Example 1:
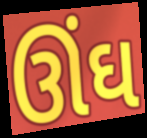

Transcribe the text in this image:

ઊંઘ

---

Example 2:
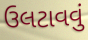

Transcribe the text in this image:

ઉલટાવવું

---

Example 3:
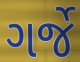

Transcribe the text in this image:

ગર્જે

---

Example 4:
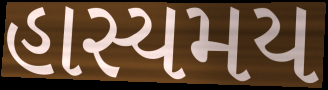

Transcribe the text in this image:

હાસ્યમય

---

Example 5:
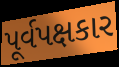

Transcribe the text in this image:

પૂર્વપક્ષકાર